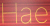
Hae